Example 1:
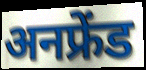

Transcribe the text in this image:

अनफ्रेंड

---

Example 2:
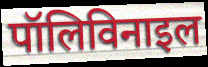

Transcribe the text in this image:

पॉलिविनाइल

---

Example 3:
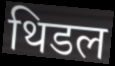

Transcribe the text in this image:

थिडल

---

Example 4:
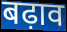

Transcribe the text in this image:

बढ़ाव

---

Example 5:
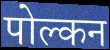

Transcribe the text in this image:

पोल्कन